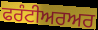
ਫਰੰਟੀਅਰਅਰ